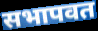
सभापवत